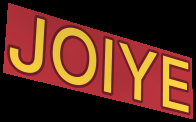
JOIYE